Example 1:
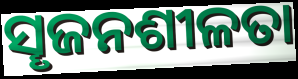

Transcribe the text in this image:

ସୄଜନଶୀଳତା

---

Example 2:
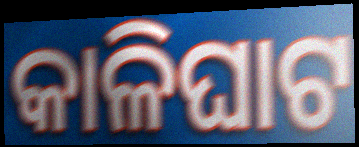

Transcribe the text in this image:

କାଳିଘାଟ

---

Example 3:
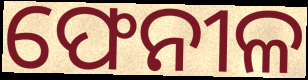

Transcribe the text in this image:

ଫେନୀଳ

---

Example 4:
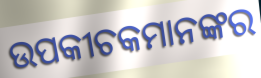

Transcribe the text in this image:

ଉପକୀଚକମାନଙ୍କର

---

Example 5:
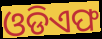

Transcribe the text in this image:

ଓଡିଏଫ